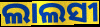
ଲାଲସୀ